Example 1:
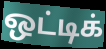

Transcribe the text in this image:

ஒட்டிக்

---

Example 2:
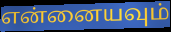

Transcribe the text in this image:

என்னையவும்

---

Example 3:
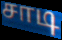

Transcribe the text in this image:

சாடி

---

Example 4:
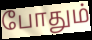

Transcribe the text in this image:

போதும்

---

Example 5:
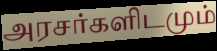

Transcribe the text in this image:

அரசர்களிடமும்